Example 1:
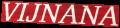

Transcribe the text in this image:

VIJNANA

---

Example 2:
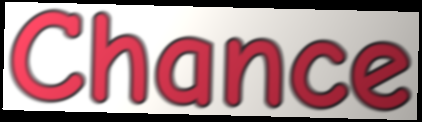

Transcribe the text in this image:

Chance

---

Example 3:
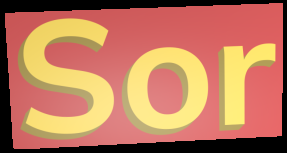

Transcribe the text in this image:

Sor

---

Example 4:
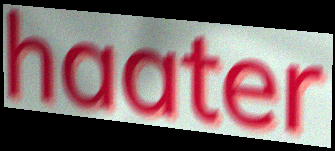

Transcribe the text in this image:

haater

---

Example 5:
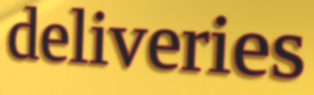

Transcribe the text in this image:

deliveries